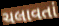
ચલાવતાં